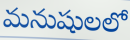
మనుషులలో